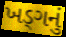
ખડ્ગનું